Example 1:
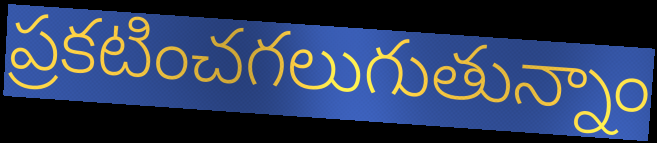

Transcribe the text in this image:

ప్రకటించగలుగుతున్నాం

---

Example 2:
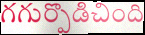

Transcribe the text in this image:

గగుర్పొడిచింది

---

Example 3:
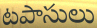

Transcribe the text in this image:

టపాసులు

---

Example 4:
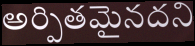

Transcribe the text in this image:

అర్పితమైనదని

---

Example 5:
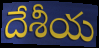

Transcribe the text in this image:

దేశీయ